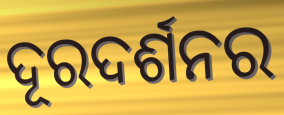
ଦୂରଦର୍ଶନର